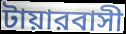
টায়ারবাসী